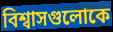
বিশ্বাসগুলোকে